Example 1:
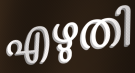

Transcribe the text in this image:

എഴുതി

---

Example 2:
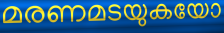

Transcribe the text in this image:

മരണമടയുകയോ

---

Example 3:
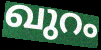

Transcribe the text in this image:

ഖുറം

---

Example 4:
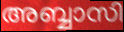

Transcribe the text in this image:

അബ്ബാസി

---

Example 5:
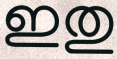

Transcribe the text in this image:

ഇതു